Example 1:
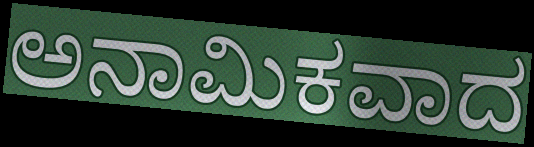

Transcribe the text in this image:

ಅನಾಮಿಕವಾದ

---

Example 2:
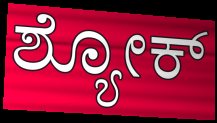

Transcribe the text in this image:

ಶ್ಯೋಕ್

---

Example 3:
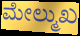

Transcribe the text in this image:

ಮೇಲ್ಮುಖ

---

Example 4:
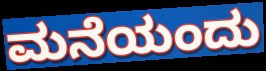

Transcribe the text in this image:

ಮನೆಯಂದು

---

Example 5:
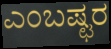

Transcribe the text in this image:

ಎಂಬಷ್ಟರ